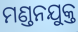
ମଣ୍ଡନଯୁକ୍ତ